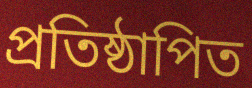
প্ৰতিষ্ঠাপিত